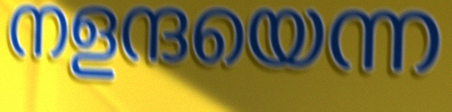
നളന്ദയെന്ന